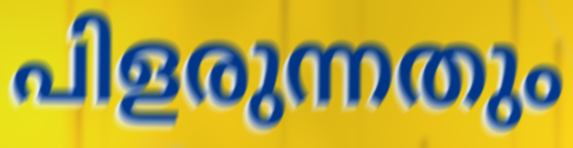
പിളരുന്നതും